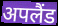
अपलैंड